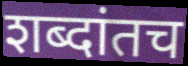
शब्दांतच